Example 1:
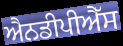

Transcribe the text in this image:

ਐਨਡੀਪੀਐੱਸ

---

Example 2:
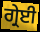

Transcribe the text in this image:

ਗ੍ਰੇਈ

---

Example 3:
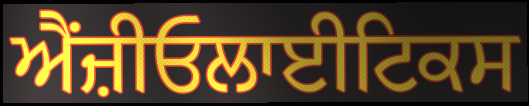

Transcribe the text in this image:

ਐਂਜ਼ੀਓਲਾਈਟਿਕਸ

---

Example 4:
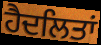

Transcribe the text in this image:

ਹੈਦਲਿਤਾਂ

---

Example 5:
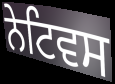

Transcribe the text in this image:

ਨੇਟਿਵਸ